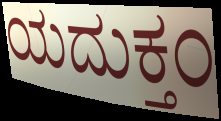
ಯದುಕ್ತಂ